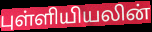
புள்ளியியலின்